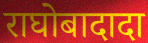
राघोबादादा